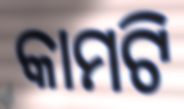
କାମଟି